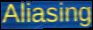
Aliasing